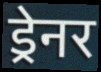
ड्रेनर